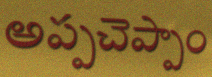
అప్పచెప్పాం